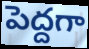
పెద్దగా